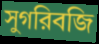
সুগরিবজি